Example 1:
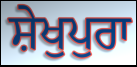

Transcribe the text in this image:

ਸ਼ੇਖੁਪੁਰਾ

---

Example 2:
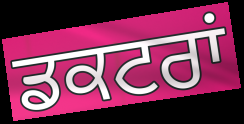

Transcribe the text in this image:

ਡਕਟਰਾਂ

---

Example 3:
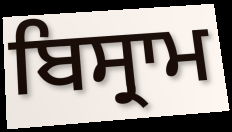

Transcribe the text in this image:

ਬਿਸ੍ਰਾਮ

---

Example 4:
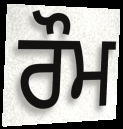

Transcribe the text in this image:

ਰੌਮ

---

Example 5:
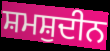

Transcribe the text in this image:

ਸ਼ਮਸ਼ੁਦੀਨ